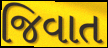
જિવાત